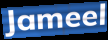
Jameel